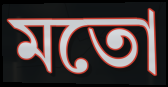
মতো